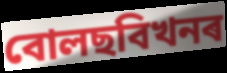
বোলছবিখনৰ